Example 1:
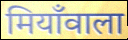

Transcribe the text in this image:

मियाँवाला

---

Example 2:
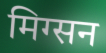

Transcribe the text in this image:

मिग्सन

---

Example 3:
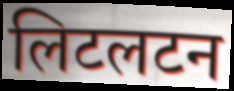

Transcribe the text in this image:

लिटलटन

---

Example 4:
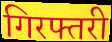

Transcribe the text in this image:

गिरफ्तरी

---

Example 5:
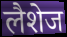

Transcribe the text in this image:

लैशेज